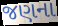
જણના